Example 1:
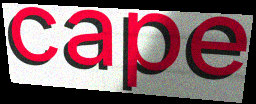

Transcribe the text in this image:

cape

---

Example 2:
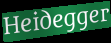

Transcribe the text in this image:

Heidegger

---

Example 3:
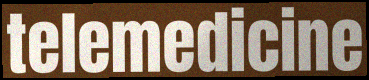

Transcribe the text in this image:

telemedicine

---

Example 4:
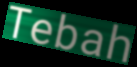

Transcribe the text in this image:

Tebah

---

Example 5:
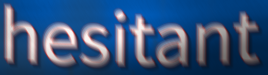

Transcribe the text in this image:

hesitant